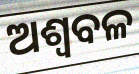
ଅଶ୍ୱବଳ